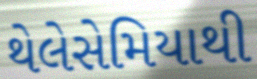
થેલેસેમિયાથી